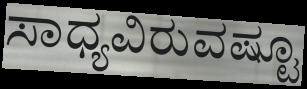
ಸಾಧ್ಯವಿರುವಷ್ಟೂ